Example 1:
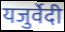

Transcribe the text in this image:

यजुर्वेदी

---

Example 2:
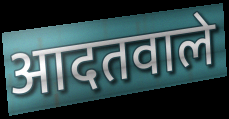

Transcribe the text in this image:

आदतवाले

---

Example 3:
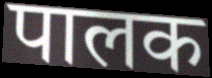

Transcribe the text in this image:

पालक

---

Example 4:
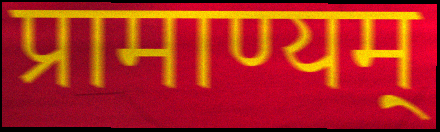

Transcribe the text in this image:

प्रामाण्यम्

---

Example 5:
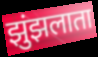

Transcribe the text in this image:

झुंझलाता